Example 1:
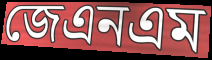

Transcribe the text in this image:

জেএনএম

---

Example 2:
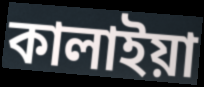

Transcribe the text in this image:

কালাইয়া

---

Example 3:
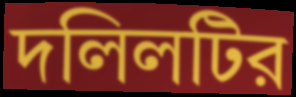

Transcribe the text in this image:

দলিলটির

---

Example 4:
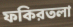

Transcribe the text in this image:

ফকিরতলা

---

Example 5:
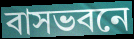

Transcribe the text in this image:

বাসভবনে